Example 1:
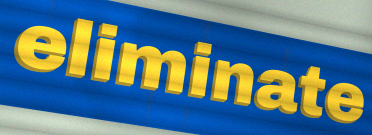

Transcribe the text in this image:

eliminate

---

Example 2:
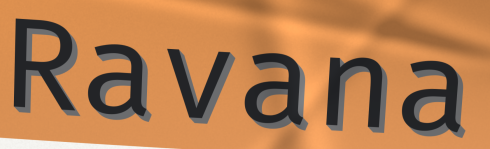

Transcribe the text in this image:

Ravana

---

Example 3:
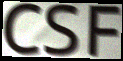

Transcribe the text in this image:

CSF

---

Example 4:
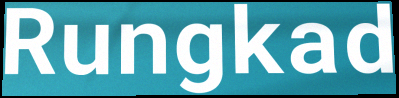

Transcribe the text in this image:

Rungkad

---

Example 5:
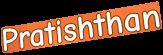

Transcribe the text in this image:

Pratishthan